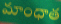
మాంధాత